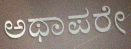
ಅಥಾಪರೇ